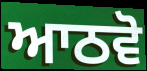
ਆਠਵੋ